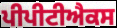
ਪੀਪੀਟੀਐਕਸ